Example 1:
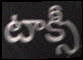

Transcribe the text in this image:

టాక్సీ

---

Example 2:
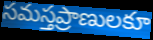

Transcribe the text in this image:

సమస్తప్రాణులకూ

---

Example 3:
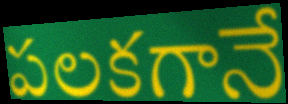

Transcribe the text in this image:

పలకగానే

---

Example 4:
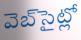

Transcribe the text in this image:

వెబ్‌సైట్లో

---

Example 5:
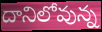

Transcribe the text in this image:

దానిలోవున్న